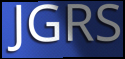
JGRS